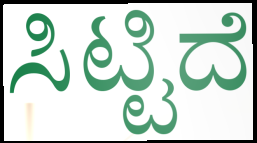
ಸಿಟ್ಟಿದೆ